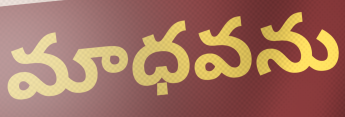
మాధవను